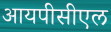
आयपीसीएल